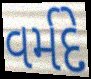
વર્મદે